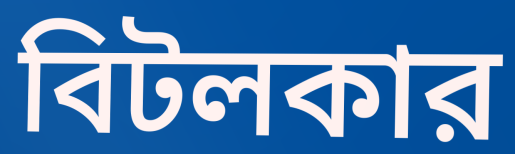
বিটলকার